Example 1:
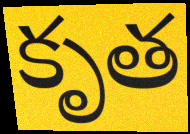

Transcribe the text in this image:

కృత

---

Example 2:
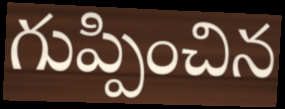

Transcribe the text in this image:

గుప్పించిన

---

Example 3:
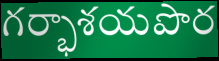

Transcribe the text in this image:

గర్భాశయపొర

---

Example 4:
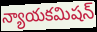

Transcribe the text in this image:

న్యాయకమిషన్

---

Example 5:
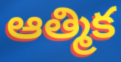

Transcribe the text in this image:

ఆత్మిక